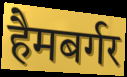
हैमबर्गर